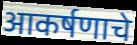
आकर्षणाचे